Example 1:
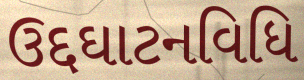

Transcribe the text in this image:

ઉદ્દઘાટનવિધિ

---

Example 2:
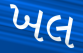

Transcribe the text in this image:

ખલ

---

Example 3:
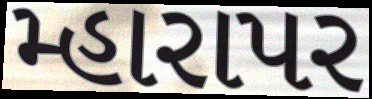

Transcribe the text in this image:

મ્હારાપર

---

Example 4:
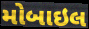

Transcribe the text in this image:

મોબાઇલ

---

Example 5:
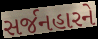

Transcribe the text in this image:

સર્જનહારને